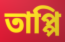
তাপ্পি